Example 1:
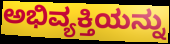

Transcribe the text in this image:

ಅಭಿವ್ಯಕ್ತಿಯನ್ನು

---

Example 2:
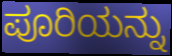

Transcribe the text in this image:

ಪೂರಿಯನ್ನು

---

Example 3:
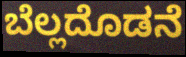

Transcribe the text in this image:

ಬೆಲ್ಲದೊಡನೆ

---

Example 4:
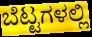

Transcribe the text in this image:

ಬೆಟ್ಟಗಳಲ್ಲಿ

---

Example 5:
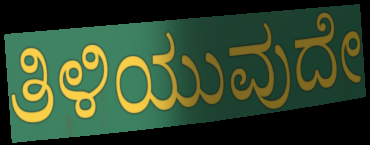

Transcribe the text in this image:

ತಿಳಿಯುವುದೇ